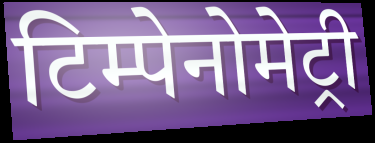
टिम्पेनोमेट्री